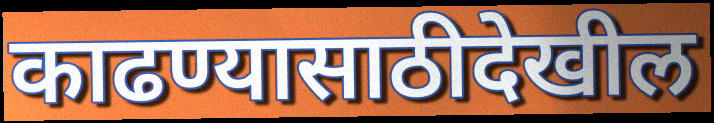
काढण्यासाठीदेखील